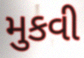
મુકવી